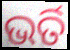
ଭର୍ତି